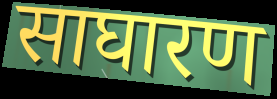
साघारण